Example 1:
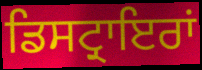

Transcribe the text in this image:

ਡਿਸਟ੍ਰਾਇਰਾਂ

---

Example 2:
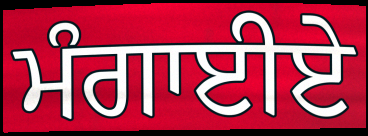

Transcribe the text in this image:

ਮੰਗਾਈਏ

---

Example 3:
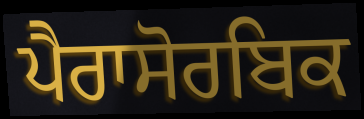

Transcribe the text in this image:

ਪੈਰਾਸੋਰਬਿਕ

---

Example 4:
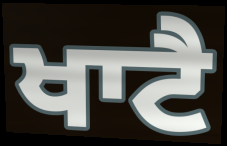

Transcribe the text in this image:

ਖਾਟੈ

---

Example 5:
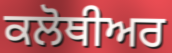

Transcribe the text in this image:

ਕਲੋਥੀਅਰ